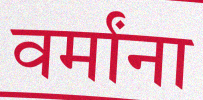
वर्मांना